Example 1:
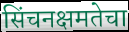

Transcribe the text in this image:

सिंचनक्षमतेचा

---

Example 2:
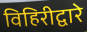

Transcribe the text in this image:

विहिरीद्वारे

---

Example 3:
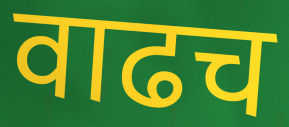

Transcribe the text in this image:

वाढच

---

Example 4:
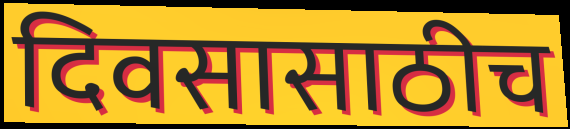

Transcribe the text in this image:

दिवसासाठीच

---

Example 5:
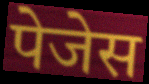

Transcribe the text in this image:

पेजेस